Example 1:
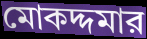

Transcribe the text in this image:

মোকদ্দমার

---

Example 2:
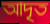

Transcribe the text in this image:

আদৃত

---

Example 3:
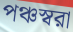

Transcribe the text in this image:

পঞ্চস্বরা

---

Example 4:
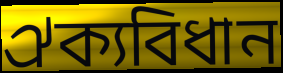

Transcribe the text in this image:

ঐক্যবিধান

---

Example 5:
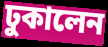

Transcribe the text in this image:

ঢুকালেন